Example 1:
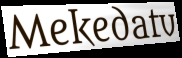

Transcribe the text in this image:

Mekedatu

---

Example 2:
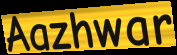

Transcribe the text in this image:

Aazhwar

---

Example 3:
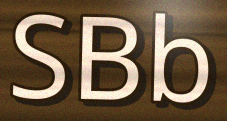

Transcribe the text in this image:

SBb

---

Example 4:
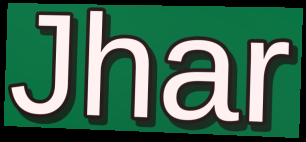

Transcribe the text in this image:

Jhar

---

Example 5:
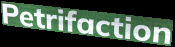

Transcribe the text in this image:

Petrifaction